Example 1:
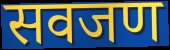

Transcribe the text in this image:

सवजण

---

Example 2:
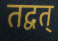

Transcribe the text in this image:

तद्वत्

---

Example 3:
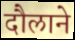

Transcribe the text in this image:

दौलाने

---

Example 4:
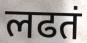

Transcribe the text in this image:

लढतं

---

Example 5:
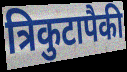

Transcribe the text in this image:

त्रिकुटापैकी